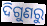
ଦିଗୁଣରୁ